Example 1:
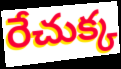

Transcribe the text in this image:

రేచుక్క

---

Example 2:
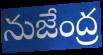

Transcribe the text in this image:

నుజేంద్ర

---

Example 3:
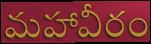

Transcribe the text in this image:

మహావీరం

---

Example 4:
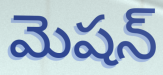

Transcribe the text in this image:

మెషన్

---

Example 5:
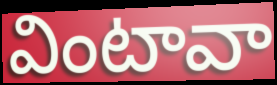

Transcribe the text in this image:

వింటావా